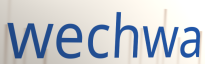
wechwa